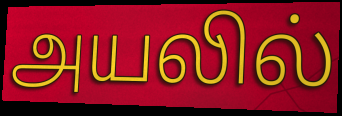
அயலில்